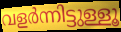
വളർന്നിട്ടുള്ളൂ